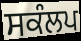
ਸਕੰਲਪ